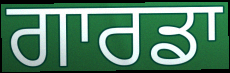
ਗਾਰਡਾ